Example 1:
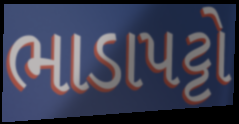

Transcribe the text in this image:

ભાડાપટ્ટો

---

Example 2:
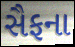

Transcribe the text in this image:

સૈફના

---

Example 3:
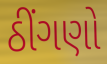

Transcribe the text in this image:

ઠીંગણો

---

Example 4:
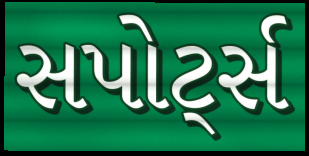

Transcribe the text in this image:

સપોર્ટ્સ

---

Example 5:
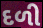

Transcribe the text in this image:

દળી